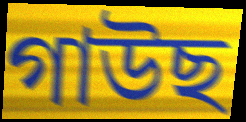
গাউছ